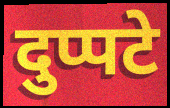
दुप्पटे